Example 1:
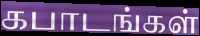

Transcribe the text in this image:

கபாடங்கள்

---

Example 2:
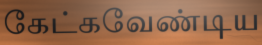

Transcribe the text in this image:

கேட்கவேண்டிய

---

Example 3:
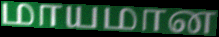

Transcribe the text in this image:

மாயமான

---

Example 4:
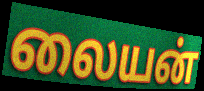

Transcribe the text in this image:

லையன்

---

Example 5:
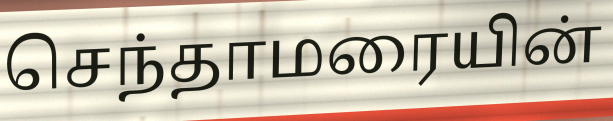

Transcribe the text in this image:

செந்தாமரையின்